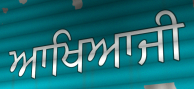
ਆਖਿਆਜੀ